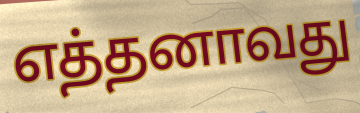
எத்தனாவது